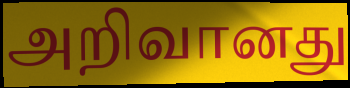
அறிவானது